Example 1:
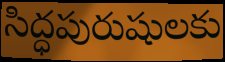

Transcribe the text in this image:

సిద్ధపురుషులకు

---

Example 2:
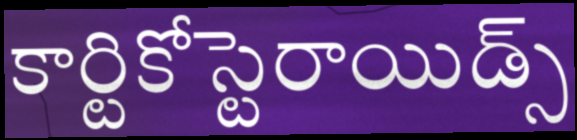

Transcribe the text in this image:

కార్టికోస్టెరాయిడ్స్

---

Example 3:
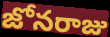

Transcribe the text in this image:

జోనరాజు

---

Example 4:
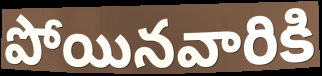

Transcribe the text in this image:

పోయినవారికి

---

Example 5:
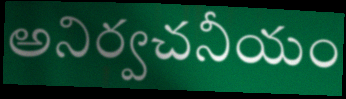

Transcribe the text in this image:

అనిర్వచనీయం